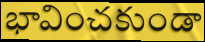
భావించకుండా